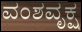
ವಂಶವೃಕ್ಷ